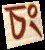
চং